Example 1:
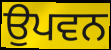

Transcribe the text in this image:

ਉਪਵਨ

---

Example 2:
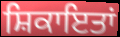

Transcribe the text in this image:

ਸ਼ਿਕਾਇਤਾਂ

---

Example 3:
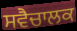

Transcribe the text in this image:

ਸਵੈਚਾਲਕ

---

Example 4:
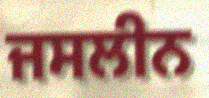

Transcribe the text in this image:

ਜਸਲੀਨ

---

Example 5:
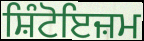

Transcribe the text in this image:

ਸ਼ਿੰਟੋਇਜ਼ਮ